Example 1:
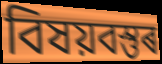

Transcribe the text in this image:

বিষয়বস্তুৰ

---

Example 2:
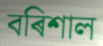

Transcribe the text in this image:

বৰিশাল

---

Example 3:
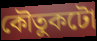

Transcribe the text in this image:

কৌতুকটো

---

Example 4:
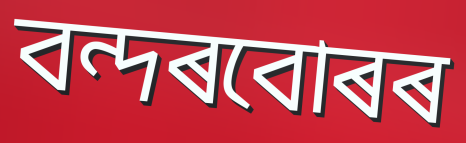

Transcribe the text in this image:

বন্দৰবোৰৰ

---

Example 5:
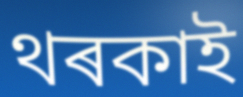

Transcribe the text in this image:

থৰকাই